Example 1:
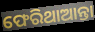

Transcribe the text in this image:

ଫେରିଥାଆନ୍ତା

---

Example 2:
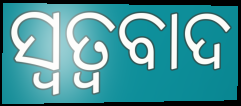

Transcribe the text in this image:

ସ୍ୱତ୍ୱବାଦ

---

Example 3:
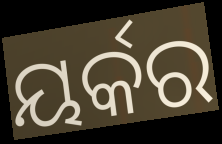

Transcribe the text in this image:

ୟର୍କର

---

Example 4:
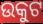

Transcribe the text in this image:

ଉକୁଟ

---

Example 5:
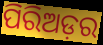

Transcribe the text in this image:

ପିରିଅଡ଼ର